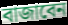
বাজাবেন